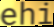
ehi